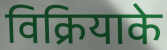
विक्रियाके